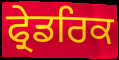
ਫ੍ਰੇਡਰਿਕ